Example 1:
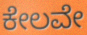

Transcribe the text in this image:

ಕೇಲವೇ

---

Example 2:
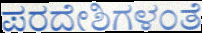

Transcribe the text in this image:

ಪರದೇಶಿಗಳಂತೆ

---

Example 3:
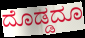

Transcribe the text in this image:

ದೊಡ್ಡದೂ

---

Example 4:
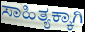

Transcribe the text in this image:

ಸಾಹಿತ್ಯಕ್ಕಾಗಿ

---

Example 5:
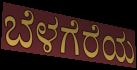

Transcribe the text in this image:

ಬೆಳಗೆರೆಯ